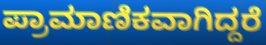
ಪ್ರಾಮಾಣಿಕವಾಗಿದ್ದರೆ